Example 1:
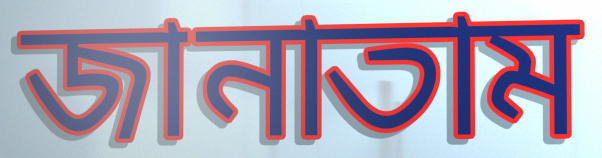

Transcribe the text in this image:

জানাতাম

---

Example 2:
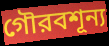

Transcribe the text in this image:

গৌরবশূন্য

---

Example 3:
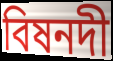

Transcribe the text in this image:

বিষনদী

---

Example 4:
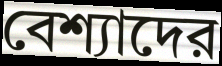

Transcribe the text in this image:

বেশ্যাদের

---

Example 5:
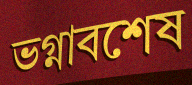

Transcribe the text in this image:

ভগ্নাবশেষ